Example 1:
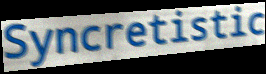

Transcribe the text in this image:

Syncretistic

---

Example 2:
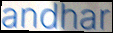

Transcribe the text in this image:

andhar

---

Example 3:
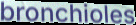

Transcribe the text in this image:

bronchioles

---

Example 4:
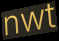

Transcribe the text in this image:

nwt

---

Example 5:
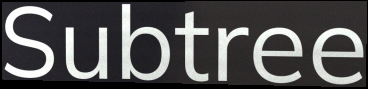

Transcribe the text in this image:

Subtree